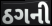
ઠગની